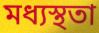
মধ্যস্থতা